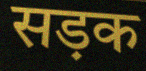
सड़क